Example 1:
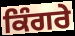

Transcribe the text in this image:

ਕਿੰਗਰੇ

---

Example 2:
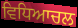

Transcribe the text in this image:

ਵਿਧਿਆਚਲ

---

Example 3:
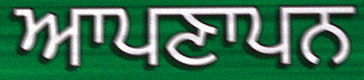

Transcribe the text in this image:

ਆਪਣਾਪਨ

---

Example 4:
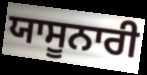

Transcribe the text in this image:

ਯਾਸੂਨਾਰੀ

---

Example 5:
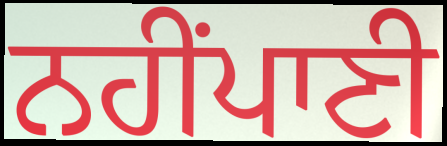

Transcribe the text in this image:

ਨਹੀਂਪਾਣੀ